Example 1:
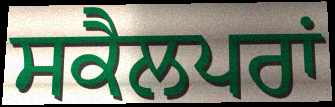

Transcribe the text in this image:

ਸਕੈਲਪਰਾਂ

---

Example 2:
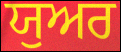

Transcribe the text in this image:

ਯੁਅਰ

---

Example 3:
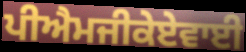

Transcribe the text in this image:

ਪੀਐਮਜੀਕੇਏਵਾਈ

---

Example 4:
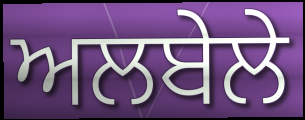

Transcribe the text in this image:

ਅਲਬੇਲੇ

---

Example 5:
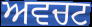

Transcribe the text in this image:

ਅਵਚਟ